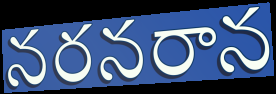
నరనరాన